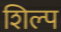
शिल्प